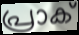
പ്രാക്